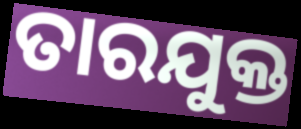
ତାରଯୁକ୍ତ